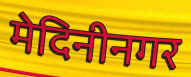
मेदिनीनगर